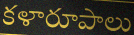
కళారూపాలు